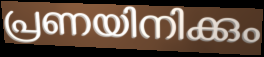
പ്രണയിനിക്കും